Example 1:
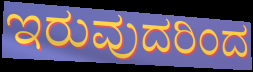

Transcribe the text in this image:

ಇರುವುದರಿಂದ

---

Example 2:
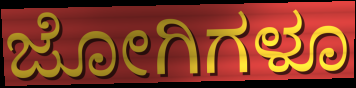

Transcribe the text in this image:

ಜೋಗಿಗಳೂ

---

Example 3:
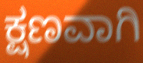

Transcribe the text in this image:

ಕ್ಷಣವಾಗಿ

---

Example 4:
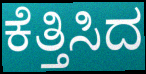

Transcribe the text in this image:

ಕೆತ್ತಿಸಿದ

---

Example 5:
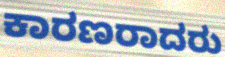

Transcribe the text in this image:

ಕಾರಣರಾದರು